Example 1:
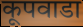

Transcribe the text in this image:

कूपवाडा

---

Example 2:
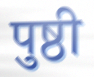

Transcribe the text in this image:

पुष्ठी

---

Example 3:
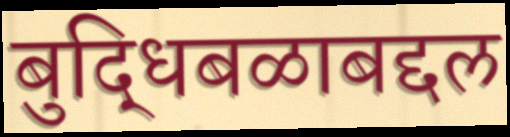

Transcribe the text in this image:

बुद्धिबळाबद्दल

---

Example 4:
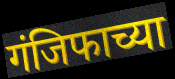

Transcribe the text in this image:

गंजिफाच्या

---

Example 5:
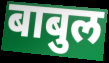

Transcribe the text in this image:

बाबुल